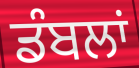
ਡੰਬਲਾਂ